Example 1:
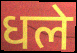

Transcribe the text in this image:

धले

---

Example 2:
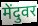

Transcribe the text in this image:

मेंदुवर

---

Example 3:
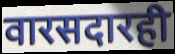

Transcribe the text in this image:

वारसदारही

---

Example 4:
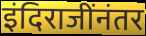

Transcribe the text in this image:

इंदिराजींनंतर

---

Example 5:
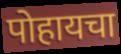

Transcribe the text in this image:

पोहायचा